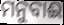
ମନୁବାଈ